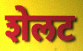
शेलट